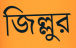
জিল্লুর